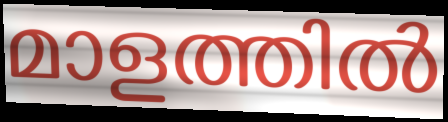
മാളത്തിൽ